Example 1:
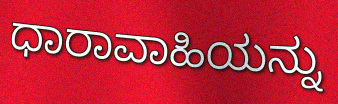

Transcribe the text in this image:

ಧಾರಾವಾಹಿಯನ್ನು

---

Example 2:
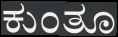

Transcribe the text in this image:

ಕುಂತೂ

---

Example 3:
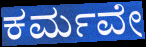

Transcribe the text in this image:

ಕರ್ಮವೇ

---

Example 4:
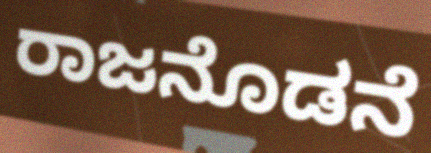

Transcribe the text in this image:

ರಾಜನೊಡನೆ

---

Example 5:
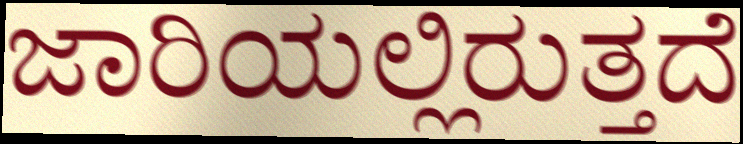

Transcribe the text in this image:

ಜಾರಿಯಲ್ಲಿರುತ್ತದೆ